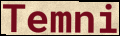
Temni